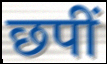
छपीं